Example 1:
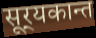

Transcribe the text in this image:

सूर्यकान्त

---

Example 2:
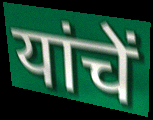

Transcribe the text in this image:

यांचें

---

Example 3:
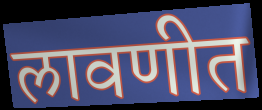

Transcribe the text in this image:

लावणीत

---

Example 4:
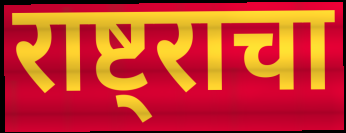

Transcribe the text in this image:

राष्ट्राचा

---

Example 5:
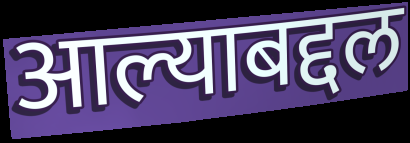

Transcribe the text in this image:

आल्याबद्दल